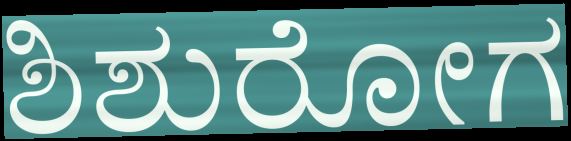
ಶಿಶುರೋಗ